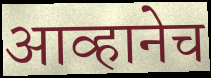
आव्हानेच